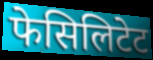
फेसिलिटेट